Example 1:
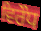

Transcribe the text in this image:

ਵਿਰੌਧ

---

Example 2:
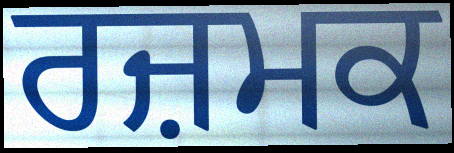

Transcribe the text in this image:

ਰਜ਼ਮਕ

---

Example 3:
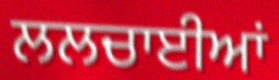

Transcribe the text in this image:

ਲਲਚਾਈਆਂ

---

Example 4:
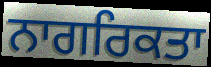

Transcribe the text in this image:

ਨਾਗਰਿਕਤਾ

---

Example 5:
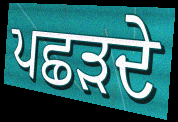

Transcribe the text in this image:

ਪਛੜਦੇ